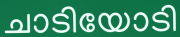
ചാടിയോടി